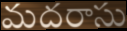
మదరాసు